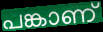
പങ്കാണ്